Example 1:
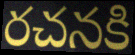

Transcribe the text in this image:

రచనకి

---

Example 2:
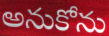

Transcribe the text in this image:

అనుకోను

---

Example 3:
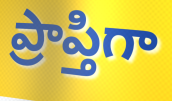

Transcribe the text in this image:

ప్రాప్తిగా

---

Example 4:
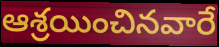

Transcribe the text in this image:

ఆశ్రయించినవారే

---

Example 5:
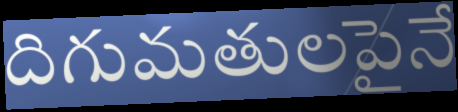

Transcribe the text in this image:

దిగుమతులపైనే